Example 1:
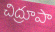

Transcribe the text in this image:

చిద్రూపా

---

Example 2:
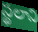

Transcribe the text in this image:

స్థలాని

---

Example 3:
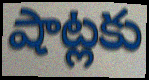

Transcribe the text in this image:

షాట్లకు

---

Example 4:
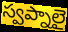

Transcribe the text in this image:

స్వప్నాలై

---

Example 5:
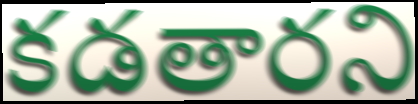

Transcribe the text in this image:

కడతారని